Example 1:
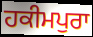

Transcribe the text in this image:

ਹਕੀਮਪੁਰਾ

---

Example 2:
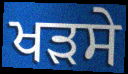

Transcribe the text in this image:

ਖੜਸੇ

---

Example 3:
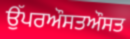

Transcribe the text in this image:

ਉੱਪਰਔਸਤਔਸਤ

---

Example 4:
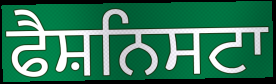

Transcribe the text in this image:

ਫੈਸ਼ਨਿਸਟਾ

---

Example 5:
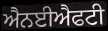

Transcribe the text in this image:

ਐਨਈਐਫਟੀ